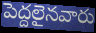
పెద్దలైనవారు